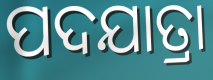
ପଦଯାତ୍ରା